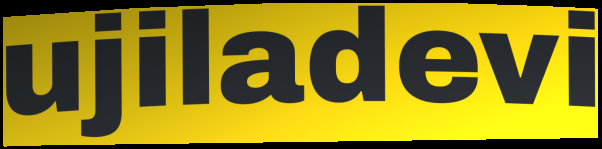
ujiladevi